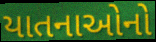
યાતનાઓનો